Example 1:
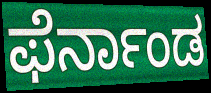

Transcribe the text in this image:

ಫೆರ್ನಾಂಡ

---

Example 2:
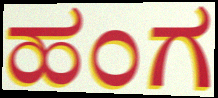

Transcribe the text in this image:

ಹಂಗ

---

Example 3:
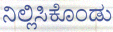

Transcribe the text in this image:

ನಿಲ್ಲಿಸಿಕೊಂಡು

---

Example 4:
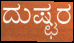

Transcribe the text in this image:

ದುಷ್ಟರ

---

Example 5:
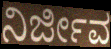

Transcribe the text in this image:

ನಿರ್ಜೀವ